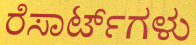
ರೆಸಾರ್ಟ್‌ಗಳು